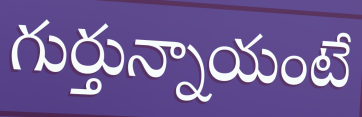
గుర్తున్నాయంటే